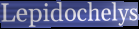
Lepidochelys